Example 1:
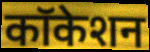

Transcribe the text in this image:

कॉकेशन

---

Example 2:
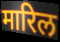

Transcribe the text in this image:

मारिल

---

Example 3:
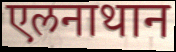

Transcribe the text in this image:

एलनाथान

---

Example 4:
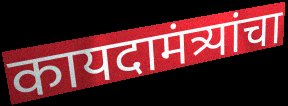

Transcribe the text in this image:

कायदामंत्र्यांचा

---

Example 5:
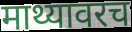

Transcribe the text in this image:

माथ्यावरच